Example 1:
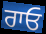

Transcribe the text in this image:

ਰਾਓ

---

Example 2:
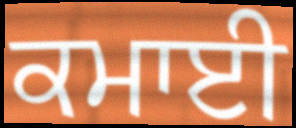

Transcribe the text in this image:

ਕਮਾਈ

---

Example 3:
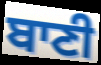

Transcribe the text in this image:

ਬਾਣੀ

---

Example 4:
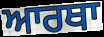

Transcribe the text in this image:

ਆਰਥਾ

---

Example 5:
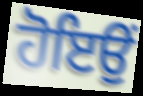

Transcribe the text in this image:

ਹੋਇਉਂ